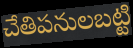
చేతిపనులబట్టి